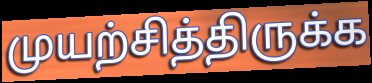
முயற்சித்திருக்க